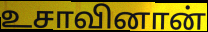
உசாவினான்